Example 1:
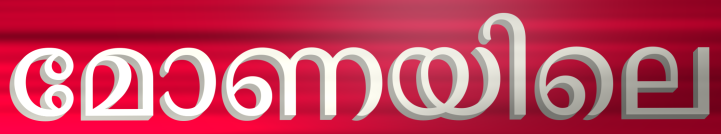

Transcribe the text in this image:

മോണയിലെ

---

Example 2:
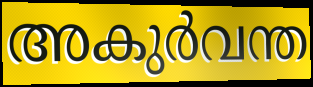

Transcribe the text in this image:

അകുർവന്ത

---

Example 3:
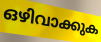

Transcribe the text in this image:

ഒഴിവാക്കുക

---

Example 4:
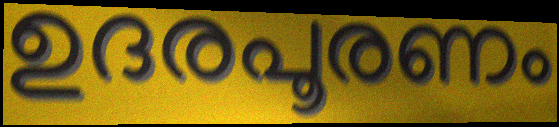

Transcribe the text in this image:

ഉദരപൂരണം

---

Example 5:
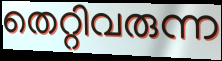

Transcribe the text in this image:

തെറ്റിവരുന്ന